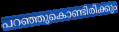
പറഞ്ഞുകൊണ്ടിരിക്കും